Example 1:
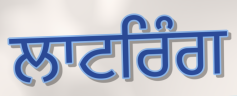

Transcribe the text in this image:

ਲਾਟਰਿੰਗ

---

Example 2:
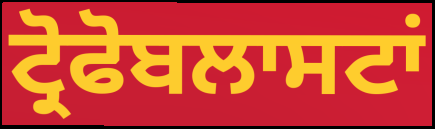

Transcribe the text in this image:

ਟ੍ਰੋਫੋਬਲਾਸਟਾਂ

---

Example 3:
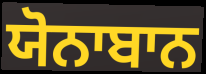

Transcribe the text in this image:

ਯੋਨਾਬਾਨ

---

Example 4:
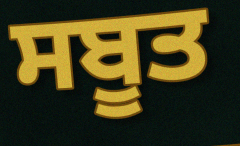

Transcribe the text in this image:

ਸਬੂਤ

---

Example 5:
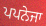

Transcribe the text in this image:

ਪਪਨੇਜਾ